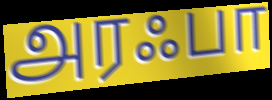
அரஃபா